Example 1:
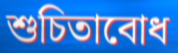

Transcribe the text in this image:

শুচিতাবোধ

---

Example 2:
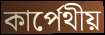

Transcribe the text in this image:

কার্পেথীয়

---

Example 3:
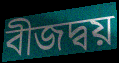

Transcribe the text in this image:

বীজদ্বয়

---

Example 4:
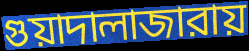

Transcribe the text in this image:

গুয়াদালাজারায়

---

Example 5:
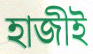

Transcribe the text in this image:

হাজীই